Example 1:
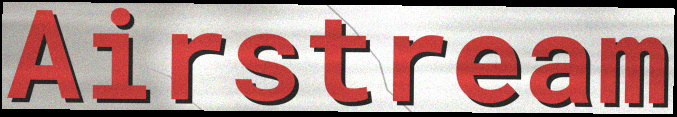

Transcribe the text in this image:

Airstream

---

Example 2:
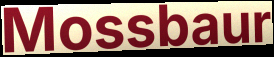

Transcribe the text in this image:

Mossbaur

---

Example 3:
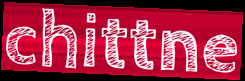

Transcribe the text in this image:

chittne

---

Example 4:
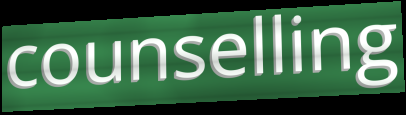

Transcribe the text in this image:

counselling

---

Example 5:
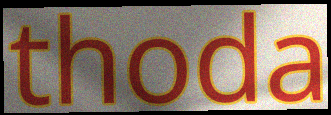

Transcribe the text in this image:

thoda